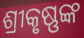
ଶ୍ରୀକୃଷ୍ଣଙ୍କ